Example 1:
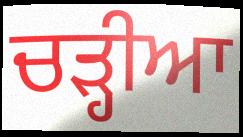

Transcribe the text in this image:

ਚੜ੍ਹੀਆ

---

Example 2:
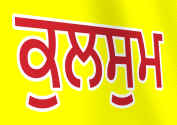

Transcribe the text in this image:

ਕੁਲਸੁਮ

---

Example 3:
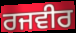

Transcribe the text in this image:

ਰਜਵੀਰ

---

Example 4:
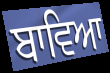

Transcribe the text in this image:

ਬਾਵਿਆ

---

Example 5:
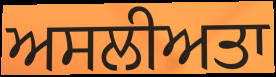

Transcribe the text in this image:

ਅਸਲੀਅਤਾ